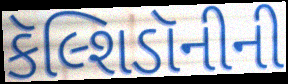
કૅલ્શિડૉનીની